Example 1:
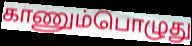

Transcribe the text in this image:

காணும்பொழுது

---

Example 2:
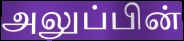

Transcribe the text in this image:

அலுப்பின்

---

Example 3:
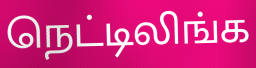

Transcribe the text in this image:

நெட்டிலிங்க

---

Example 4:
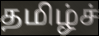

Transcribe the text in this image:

தமிழ்ச்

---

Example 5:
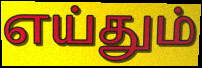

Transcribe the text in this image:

எய்தும்